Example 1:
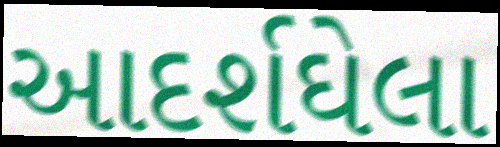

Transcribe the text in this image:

આદર્શઘેલા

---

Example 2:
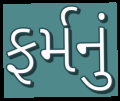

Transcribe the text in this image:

ફર્મનું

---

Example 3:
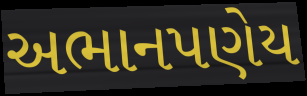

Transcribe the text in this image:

અભાનપણેય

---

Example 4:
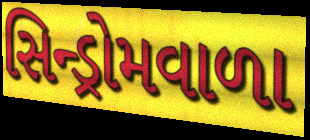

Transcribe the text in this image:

સિન્ડ્રોમવાળા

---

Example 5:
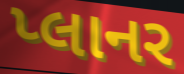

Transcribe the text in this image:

પ્લાનર